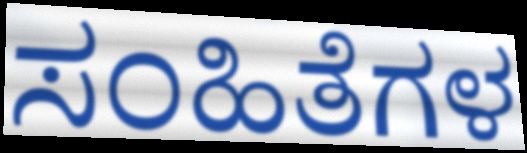
ಸಂಹಿತೆಗಳ